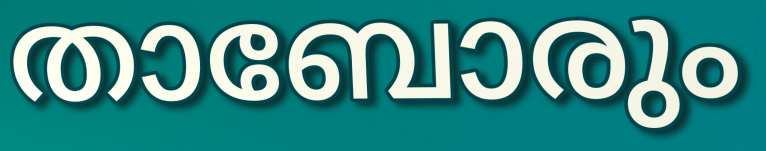
താബോരും